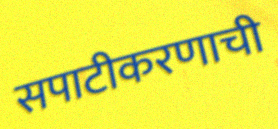
सपाटीकरणाची